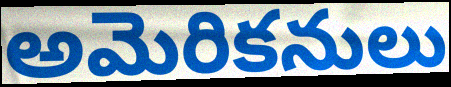
అమెరికనులు